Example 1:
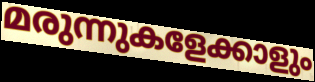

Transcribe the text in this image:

മരുന്നുകളേക്കാളും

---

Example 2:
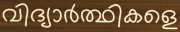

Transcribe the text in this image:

വിദ്യാർത്ഥികളെ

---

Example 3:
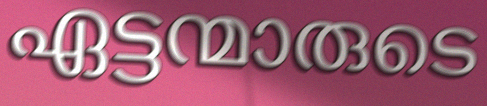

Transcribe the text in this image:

ഏട്ടന്മാരുടെ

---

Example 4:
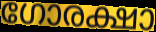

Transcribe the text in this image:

ഗോരക്ഷാ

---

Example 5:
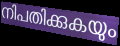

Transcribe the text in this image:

നിപതിക്കുകയും